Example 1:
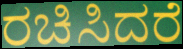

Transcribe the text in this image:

ರಚಿಸಿದರೆ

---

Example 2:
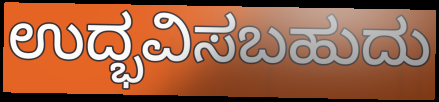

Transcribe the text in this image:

ಉದ್ಭವಿಸಬಹುದು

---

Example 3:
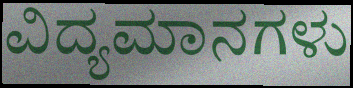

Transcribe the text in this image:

ವಿದ್ಯಮಾನಗಳು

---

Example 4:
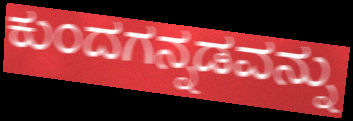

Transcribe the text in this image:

ಕುಂದಗನ್ನಡವನ್ನು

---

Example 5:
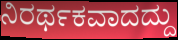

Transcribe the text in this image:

ನಿರರ್ಥಕವಾದದ್ದು